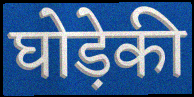
घोड़ेकी